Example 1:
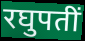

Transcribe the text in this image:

रघुपतीं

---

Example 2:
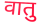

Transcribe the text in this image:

वातु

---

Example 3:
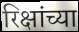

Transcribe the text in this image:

रिक्षांच्या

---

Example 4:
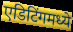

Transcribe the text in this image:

एडिटिंगमध्ये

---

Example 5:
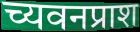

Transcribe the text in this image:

च्यवनप्राश